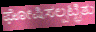
ಘೋಷಿಸಲ್ಪಟ್ಟಿತು